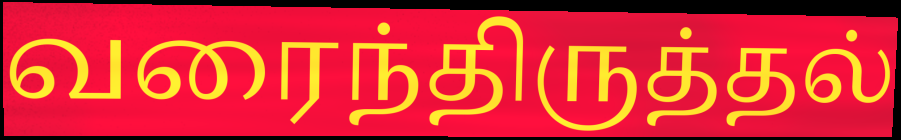
வரைந்திருத்தல்